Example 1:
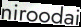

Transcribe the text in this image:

niroodai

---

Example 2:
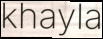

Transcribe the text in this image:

khayla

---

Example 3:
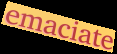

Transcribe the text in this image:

emaciate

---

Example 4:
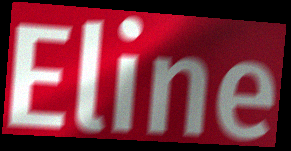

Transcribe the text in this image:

Eline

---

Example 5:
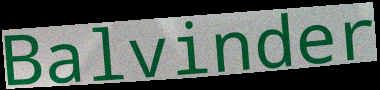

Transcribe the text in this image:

Balvinder